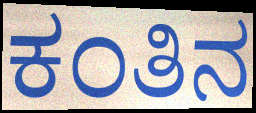
ಕಂತಿನ